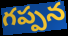
గప్పన